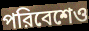
পরিবেশেও